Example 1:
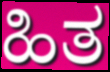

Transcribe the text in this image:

ಹಿತ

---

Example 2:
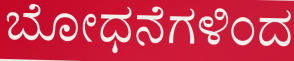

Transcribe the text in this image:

ಬೋಧನೆಗಳಿಂದ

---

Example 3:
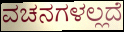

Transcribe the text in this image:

ವಚನಗಳಲ್ಲದೆ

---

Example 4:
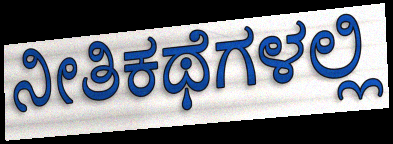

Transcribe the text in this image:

ನೀತಿಕಥೆಗಳಲ್ಲಿ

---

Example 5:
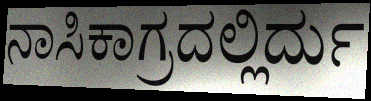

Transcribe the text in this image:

ನಾಸಿಕಾಗ್ರದಲ್ಲಿರ್ದು